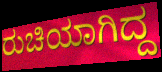
ರುಚಿಯಾಗಿದ್ದ